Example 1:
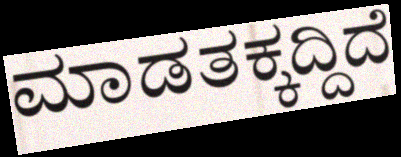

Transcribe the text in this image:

ಮಾಡತಕ್ಕದ್ದಿದೆ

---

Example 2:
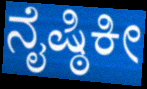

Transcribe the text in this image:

ನೈಷ್ಠಿಕೀ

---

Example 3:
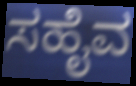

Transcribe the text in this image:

ಸಹೈವ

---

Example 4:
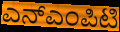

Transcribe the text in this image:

ಎನ್ಎಂಪಿಟಿ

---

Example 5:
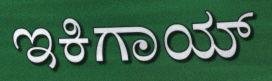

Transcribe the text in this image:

ಇಕಿಗಾಯ್